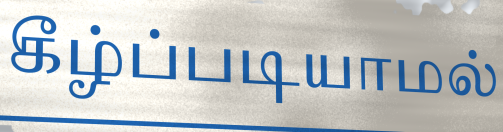
கீழ்ப்படியாமல்